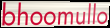
bhoomullo